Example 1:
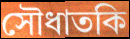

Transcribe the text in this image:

সৌধাতকি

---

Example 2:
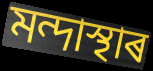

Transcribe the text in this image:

মন্দাস্থাৰ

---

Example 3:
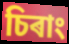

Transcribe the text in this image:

চিৰাং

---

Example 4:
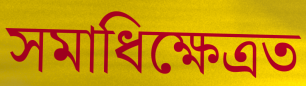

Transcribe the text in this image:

সমাধিক্ষেত্ৰত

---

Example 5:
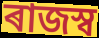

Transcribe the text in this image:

ৰাজস্ব